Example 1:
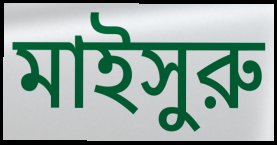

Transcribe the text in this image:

মাইসুরু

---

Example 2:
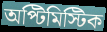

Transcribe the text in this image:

অপ্টিমিস্টিক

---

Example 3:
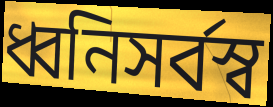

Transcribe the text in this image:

ধ্বনিসর্বস্ব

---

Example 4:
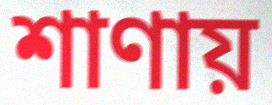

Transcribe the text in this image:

শাণায়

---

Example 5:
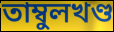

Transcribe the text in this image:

তাম্বুলখণ্ড